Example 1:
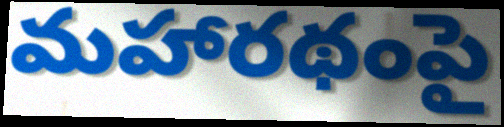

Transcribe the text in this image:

మహారథంపై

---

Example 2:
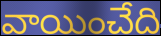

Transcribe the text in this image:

వాయించేది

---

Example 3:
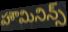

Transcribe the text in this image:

హౌమినిన్స్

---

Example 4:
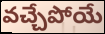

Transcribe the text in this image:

వచ్చేపోయే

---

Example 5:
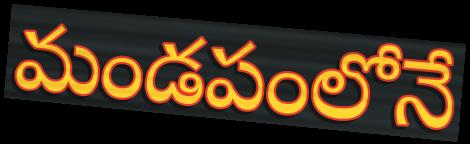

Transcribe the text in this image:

మండపంలోనే